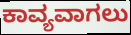
ಕಾವ್ಯವಾಗಲು